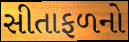
સીતાફળનો